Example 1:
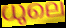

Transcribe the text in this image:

ധുലെ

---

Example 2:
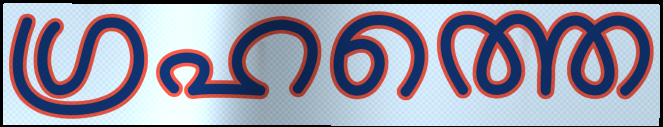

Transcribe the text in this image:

ഗ്രഹത്തെ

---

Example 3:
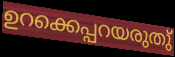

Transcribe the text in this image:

ഉറക്കെപ്പറയരുതു്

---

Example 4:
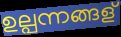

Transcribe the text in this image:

ഉല്പന്നങ്ങള്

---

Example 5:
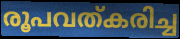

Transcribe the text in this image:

രൂപവത്കരിച്ച